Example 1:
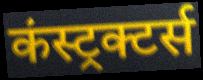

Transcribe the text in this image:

कंस्ट्रक्टर्स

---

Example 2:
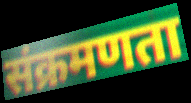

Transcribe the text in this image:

संक्रमणता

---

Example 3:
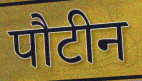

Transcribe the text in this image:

पौटीन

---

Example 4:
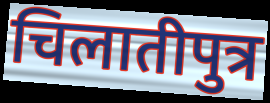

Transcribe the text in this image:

चिलातीपुत्र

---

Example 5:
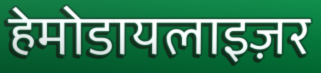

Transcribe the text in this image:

हेमोडायलाइज़र